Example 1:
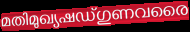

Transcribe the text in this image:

മതിമുഖ്യഷഡ്ഗുണവരൈ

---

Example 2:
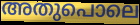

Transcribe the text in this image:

അതുപൊലെ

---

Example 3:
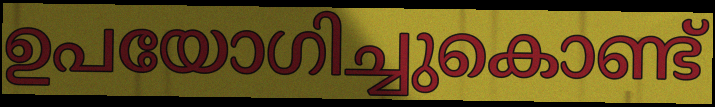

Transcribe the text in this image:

ഉപയോഗിച്ചുകൊണ്ട്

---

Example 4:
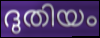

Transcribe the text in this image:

ദുതിയം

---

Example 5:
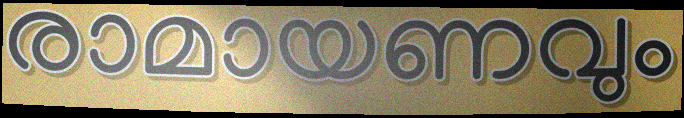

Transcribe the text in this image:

രാമായണവും